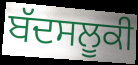
ਬੱਦਸਲੂਕੀ